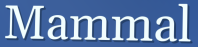
Mammal